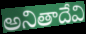
అనితాదేవి